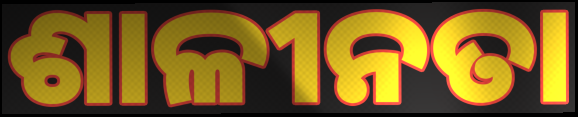
ଶାଳୀନତା